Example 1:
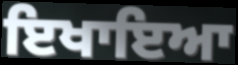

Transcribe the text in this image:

ਇਖਾਇਆ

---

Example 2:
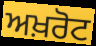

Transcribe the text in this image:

ਅਖ਼ਰੋਟ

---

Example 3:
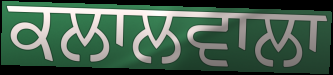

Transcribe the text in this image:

ਕਲਾਲਵਾਲਾ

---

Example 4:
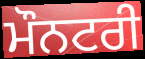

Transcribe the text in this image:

ਮੌਨਟਰੀ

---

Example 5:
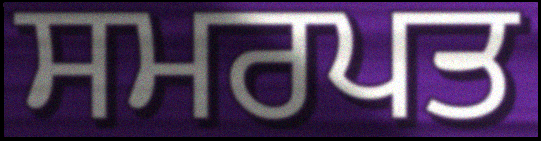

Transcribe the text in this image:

ਸਮਰਪਤ